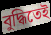
বুদ্ধিতেই